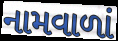
નામવાળાં